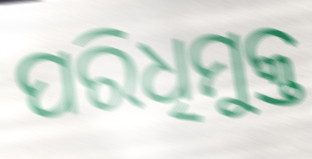
ପରିଧିମୁକ୍ତ